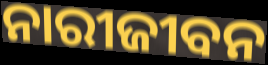
ନାରୀଜୀବନ